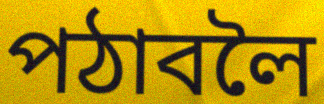
পঠাবলৈ